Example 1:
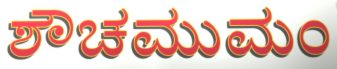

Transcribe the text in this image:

ಶೌಚಮುಮಂ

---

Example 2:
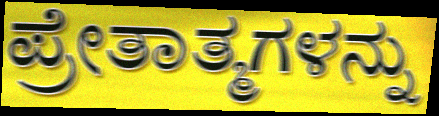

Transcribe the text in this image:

ಪ್ರೇತಾತ್ಮಗಳನ್ನು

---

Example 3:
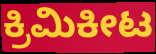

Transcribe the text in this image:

ಕ್ರಿಮಿಕೀಟ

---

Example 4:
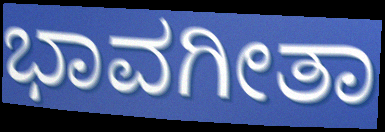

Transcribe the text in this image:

ಭಾವಗೀತಾ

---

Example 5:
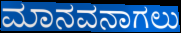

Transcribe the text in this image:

ಮಾನವನಾಗಲು